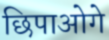
छिपाओगे